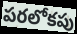
పరలోకపు